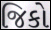
જિકો